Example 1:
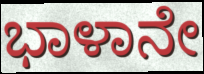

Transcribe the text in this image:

ಭಾಳಾನೇ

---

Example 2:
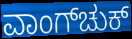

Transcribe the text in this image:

ವಾಂಗ್‌ಚುಕ್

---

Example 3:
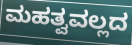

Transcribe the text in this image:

ಮಹತ್ವವಲ್ಲದ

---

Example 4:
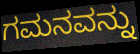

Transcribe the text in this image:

ಗಮನವನ್ನು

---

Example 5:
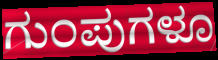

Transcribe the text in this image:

ಗುಂಪುಗಳೂ